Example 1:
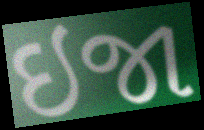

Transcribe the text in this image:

ઇજા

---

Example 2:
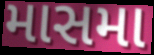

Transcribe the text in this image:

માસમા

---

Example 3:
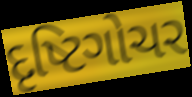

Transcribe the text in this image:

દૃષ્ટિગોચર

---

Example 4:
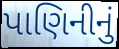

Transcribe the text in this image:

પાણિનીનું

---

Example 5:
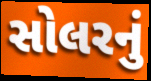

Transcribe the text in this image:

સોલરનું